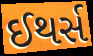
ઈથર્સ